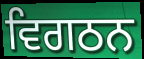
ਵਿਗਠਨ